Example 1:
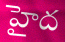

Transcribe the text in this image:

హైద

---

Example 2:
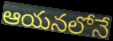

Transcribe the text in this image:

ఆయనలోనే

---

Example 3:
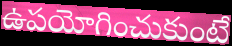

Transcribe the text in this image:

ఉపయోగించుకుంటే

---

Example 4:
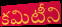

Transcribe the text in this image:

కమిటీని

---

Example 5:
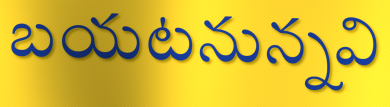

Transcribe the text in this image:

బయటనున్నవి